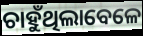
ଚାହୁଁଥିଲାବେଳେ